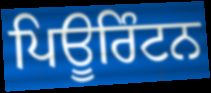
ਪਿਊਰਿੰਟਨ